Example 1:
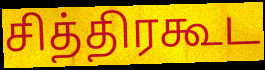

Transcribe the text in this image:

சித்திரகூட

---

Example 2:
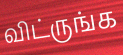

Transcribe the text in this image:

விட்ருங்க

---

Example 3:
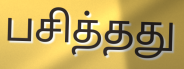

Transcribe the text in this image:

பசித்தது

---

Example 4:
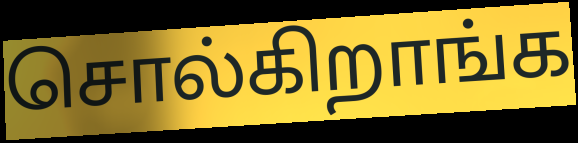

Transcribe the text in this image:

சொல்கிறாங்க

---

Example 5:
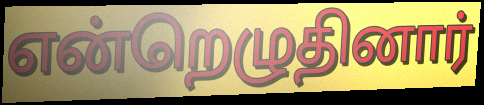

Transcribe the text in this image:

என்றெழுதினார்